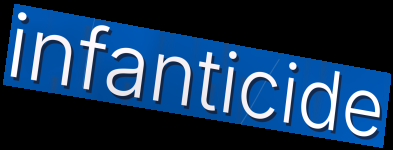
infanticide